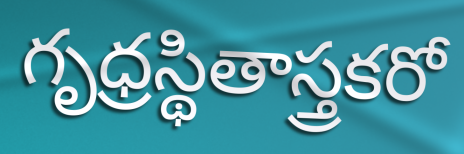
గృధ్రస్థితాస్త్రకరో